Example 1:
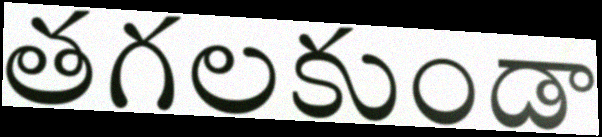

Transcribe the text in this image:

తగలకుండా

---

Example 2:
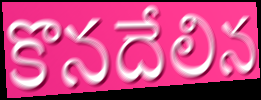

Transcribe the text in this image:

కొనదేలిన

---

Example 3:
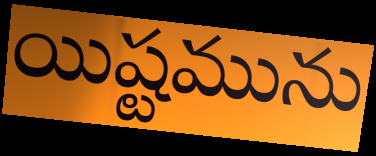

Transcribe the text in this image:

యిష్టమును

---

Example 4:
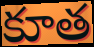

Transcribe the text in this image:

కూత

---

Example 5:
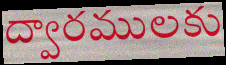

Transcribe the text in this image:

ద్వారములకు